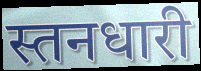
स्तनधारी